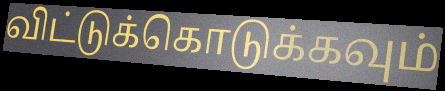
விட்டுக்கொடுக்கவும்